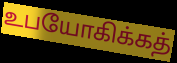
உபயோகிக்கத்